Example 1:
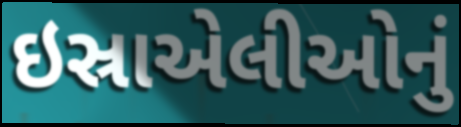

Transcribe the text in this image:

ઇસ્રાએલીઓનું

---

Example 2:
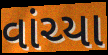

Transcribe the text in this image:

વાંચ્યા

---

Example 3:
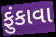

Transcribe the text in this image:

ફુંકાવા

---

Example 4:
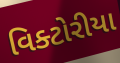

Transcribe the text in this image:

વિક્ટોરીયા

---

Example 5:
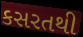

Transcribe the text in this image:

કસરતથી